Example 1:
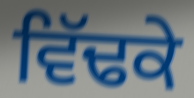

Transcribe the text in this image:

ਵਿੱਢਕੇ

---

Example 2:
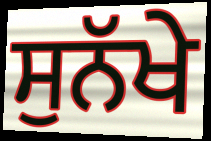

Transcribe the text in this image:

ਸੁਨੱਖੇ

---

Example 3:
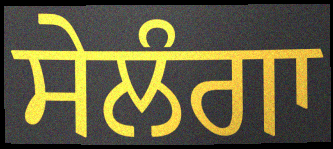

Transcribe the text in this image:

ਸੇਲੰਗਾ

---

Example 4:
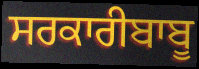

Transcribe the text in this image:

ਸਰਕਾਰੀਬਾਬੂ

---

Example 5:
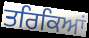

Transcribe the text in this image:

ਤਰਿਕਿਆਂ